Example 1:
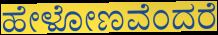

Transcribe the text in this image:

ಹೇಳೋಣವೆಂದರೆ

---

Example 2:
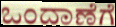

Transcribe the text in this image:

ಒಂದಾಣೆಗೆ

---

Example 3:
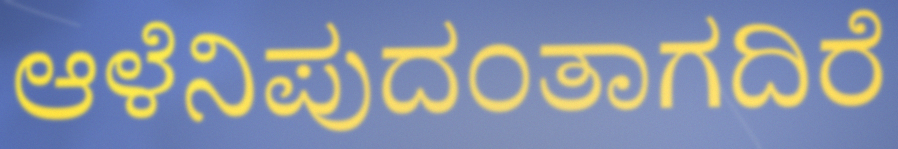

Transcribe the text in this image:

ಆಳೆನಿಪುದಂತಾಗದಿರೆ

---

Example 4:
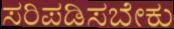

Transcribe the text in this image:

ಸರಿಪಡಿಸಬೇಕು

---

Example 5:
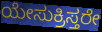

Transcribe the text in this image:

ಯೇಸುಕ್ರಿಸ್ತರೇ